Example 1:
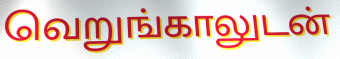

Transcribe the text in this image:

வெறுங்காலுடன்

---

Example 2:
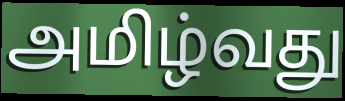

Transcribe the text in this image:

அமிழ்வது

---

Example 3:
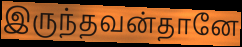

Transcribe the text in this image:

இருந்தவன்தானே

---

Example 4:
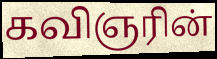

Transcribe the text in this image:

கவிஞரின்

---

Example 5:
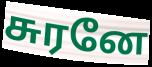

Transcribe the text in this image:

சுரனே